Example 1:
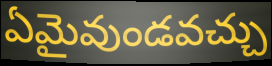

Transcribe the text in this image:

ఏమైవుండవచ్చు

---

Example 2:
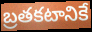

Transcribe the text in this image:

బ్రతకటానికే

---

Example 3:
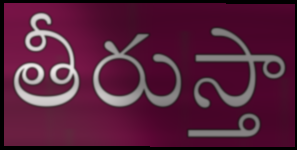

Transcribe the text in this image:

తీరుస్తా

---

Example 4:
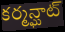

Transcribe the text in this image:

కర్మన్ఘాట్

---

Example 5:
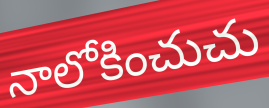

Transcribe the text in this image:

నాలోకించుచు